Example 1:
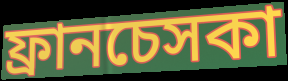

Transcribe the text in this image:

ফ্রানচেসকা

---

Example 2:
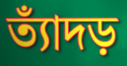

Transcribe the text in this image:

ত্যাঁদড়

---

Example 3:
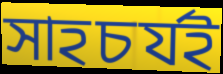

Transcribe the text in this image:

সাহচর্যই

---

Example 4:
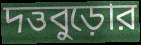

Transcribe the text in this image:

দত্তবুড়োর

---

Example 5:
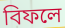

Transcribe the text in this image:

বিফলে